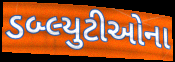
ડબ્લ્યુટીઓના